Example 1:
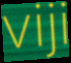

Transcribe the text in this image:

viji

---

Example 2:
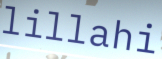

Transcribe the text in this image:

lillahi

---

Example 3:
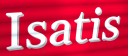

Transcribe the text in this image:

Isatis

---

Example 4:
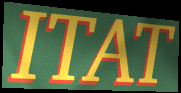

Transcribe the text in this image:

ITAT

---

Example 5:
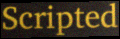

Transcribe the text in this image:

Scripted